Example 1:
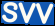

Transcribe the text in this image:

svv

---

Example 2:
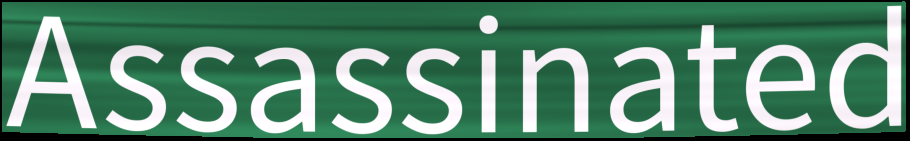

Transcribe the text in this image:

Assassinated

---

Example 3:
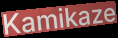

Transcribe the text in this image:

Kamikaze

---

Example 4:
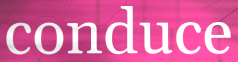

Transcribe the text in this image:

conduce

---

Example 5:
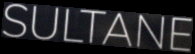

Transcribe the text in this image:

SULTANE